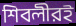
শিবলীরই